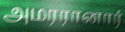
அமரரானார்